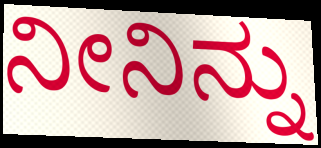
ನೀನಿನ್ನು